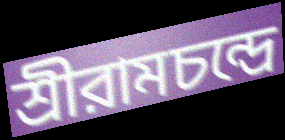
শ্রীরামচন্দ্রে